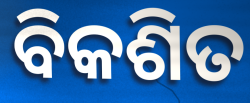
ବିକଶିତ